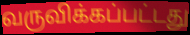
வருவிக்கப்பட்டது